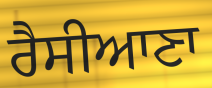
ਰੈਸੀਆਣਾ